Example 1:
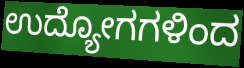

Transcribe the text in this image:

ಉದ್ಯೋಗಗಳಿಂದ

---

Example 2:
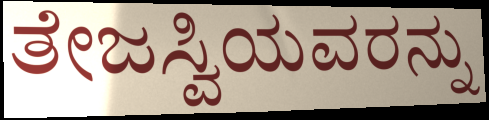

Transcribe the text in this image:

ತೇಜಸ್ವಿಯವರನ್ನು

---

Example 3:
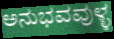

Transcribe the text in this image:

ಅನುಭವವುಳ್ಳ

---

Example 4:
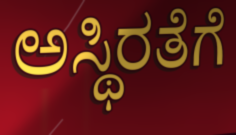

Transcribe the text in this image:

ಅಸ್ಥಿರತೆಗೆ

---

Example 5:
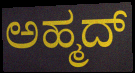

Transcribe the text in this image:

ಅಹ್ಮದ್